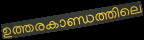
ഉത്തരകാണ്ഡത്തിലെ